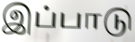
இப்பாடு